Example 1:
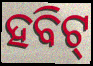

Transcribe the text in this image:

ହବିଟ୍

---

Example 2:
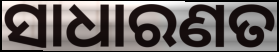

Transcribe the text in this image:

ସାଧାରଣତ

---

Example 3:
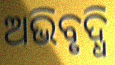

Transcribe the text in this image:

ଅଭିବୃଦ୍ଧି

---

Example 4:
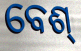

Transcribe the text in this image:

ବେଶ୍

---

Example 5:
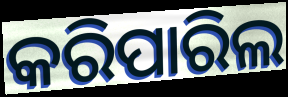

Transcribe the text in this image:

କରିପାରିଲ